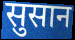
सुसान